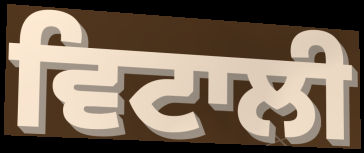
ਵਿਟਾਲੀ